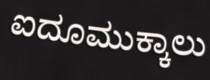
ಐದೂಮುಕ್ಕಾಲು